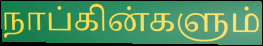
நாப்கின்களும்